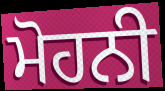
ਮੋਹਨੀ